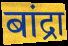
बांद्रा